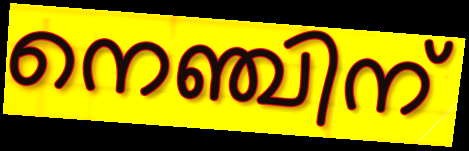
നെഞ്ചിന്